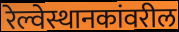
रेल्वेस्थानकांवरील